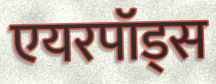
एयरपॉड्स